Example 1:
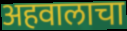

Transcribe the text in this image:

अहवालाचा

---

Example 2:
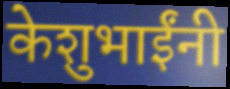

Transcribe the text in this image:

केशुभाईंनी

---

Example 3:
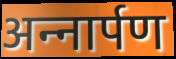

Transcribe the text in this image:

अन्नार्पण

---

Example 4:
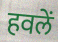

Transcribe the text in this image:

हवलें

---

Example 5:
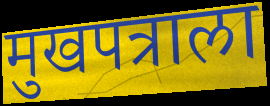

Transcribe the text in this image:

मुखपत्राला